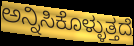
ಅನ್ನಿಸಿಕೊಳ್ಳುತ್ತದೆ